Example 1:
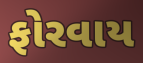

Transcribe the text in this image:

ફોરવાય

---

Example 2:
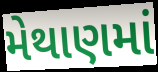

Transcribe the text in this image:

મેથાણમાં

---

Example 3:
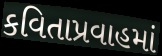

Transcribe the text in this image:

કવિતાપ્રવાહમાં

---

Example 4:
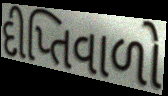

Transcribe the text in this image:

દીપ્તિવાળો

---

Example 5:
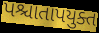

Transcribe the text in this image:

પશ્ચાતાપયુક્ત